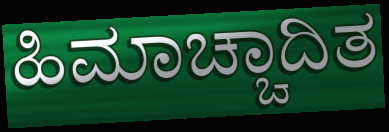
ಹಿಮಾಚ್ಚಾದಿತ